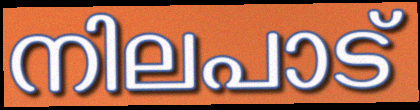
നിലപാട്